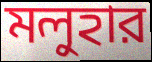
মলুহার